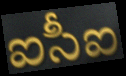
ఐసీఐ